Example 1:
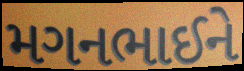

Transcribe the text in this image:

મગનભાઈને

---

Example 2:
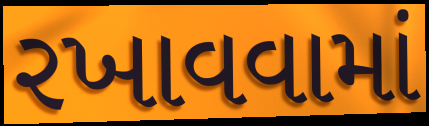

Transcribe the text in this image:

રખાવવામાં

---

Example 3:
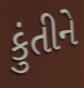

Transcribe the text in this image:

કુંતીને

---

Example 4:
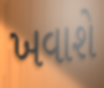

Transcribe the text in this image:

ખવાશે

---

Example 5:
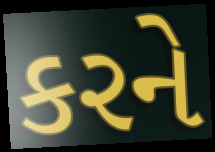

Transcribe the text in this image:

કરને